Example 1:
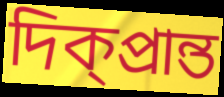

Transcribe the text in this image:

দিক্‌প্রান্ত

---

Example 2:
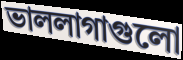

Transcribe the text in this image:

ভাললাগাগুলো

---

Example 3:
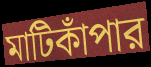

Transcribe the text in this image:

মাটিকাঁপার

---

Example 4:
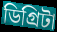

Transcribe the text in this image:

ডিগ্রিটা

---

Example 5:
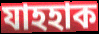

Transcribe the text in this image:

যাহহাক